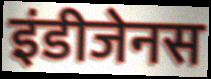
इंडीजेनस